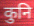
कुनि